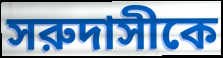
সরুদাসীকে